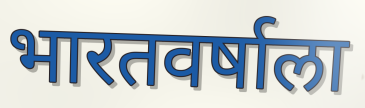
भारतवर्षाला